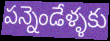
పన్నెండేళ్ళకు